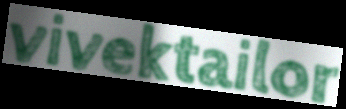
vivektailor